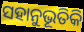
ସହାନୁଭୂତିକି